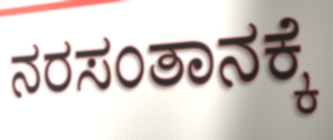
ನರಸಂತಾನಕ್ಕೆ